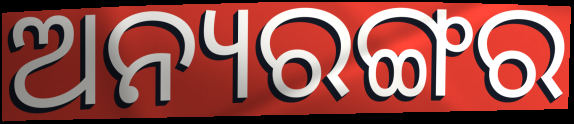
ଅନ୍ୟରଙ୍ଗର